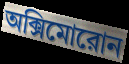
অক্সিমোরোন